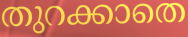
തുറക്കാതെ